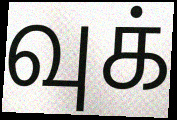
வுக்